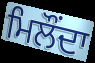
ਮਿਲੌਂਦਾ